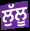
ਲੁੱਲੂ